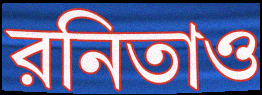
রনিতাও